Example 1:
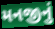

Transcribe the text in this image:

મનજીનું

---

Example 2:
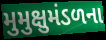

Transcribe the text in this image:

મુમુક્ષુમંડળના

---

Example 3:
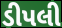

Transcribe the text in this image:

ડીપલી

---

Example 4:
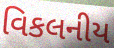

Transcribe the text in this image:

વિકલનીય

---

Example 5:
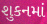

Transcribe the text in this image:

શુકનમાં